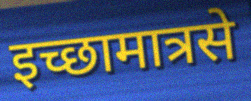
इच्छामात्रसे